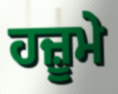
ਹਜ਼ੂਮੇ